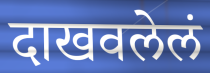
दाखवलेलं